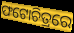
ଫଟୋଚିତ୍ରରେ